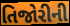
તિજોરીની